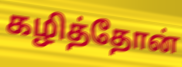
கழித்தோன்